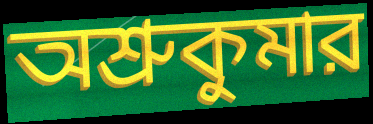
অশ্রুকুমার